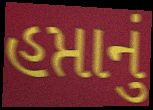
હપ્તાનું